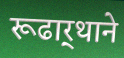
रूढार्थाने